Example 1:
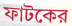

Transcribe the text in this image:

ফাটকের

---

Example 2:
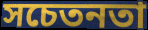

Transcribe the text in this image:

সচেতনতা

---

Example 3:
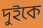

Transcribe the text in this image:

দুইকে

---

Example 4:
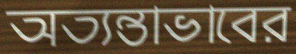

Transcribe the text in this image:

অত্যন্তাভাবের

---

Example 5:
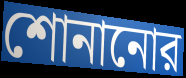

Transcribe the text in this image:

শোনানোর